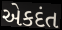
એકદંત